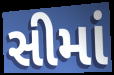
સીમાં